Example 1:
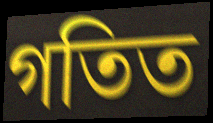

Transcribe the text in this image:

গতিত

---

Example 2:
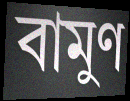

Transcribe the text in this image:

বামুণ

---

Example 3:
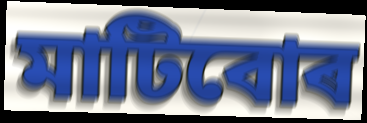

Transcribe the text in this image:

মাটিবোৰ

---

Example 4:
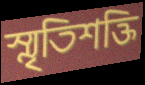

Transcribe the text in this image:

স্মৃতিশক্তি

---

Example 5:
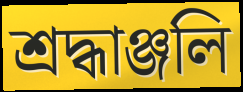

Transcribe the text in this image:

শ্ৰদ্ধাঞ্জলি